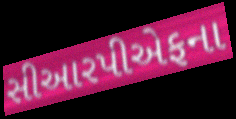
સીઆરપીએફના